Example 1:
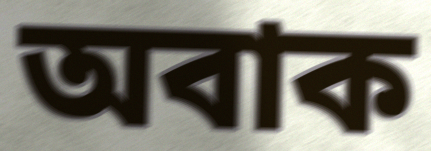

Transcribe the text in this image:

অবাক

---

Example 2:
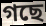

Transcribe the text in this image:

গছে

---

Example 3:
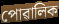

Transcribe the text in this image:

পোৱালিক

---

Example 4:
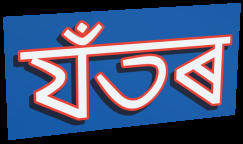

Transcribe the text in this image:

যঁতৰ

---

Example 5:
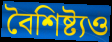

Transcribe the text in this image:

বৈশিষ্ট্যও